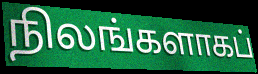
நிலங்களாகப்